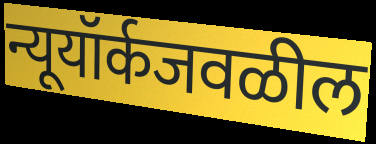
न्यूयॉर्कजवळील